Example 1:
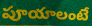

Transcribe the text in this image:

పూయాలంటే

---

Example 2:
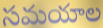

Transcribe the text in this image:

సమయాల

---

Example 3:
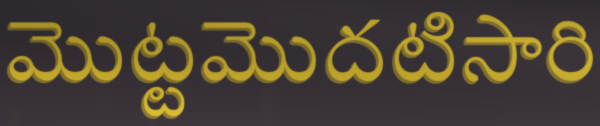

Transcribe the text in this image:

మొట్టమొదటిసారి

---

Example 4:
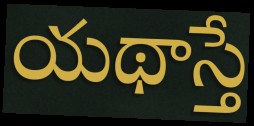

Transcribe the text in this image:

యథాస్తే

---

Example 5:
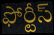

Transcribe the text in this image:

ఫోర్టీస్